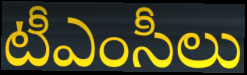
టీఎంసీలు